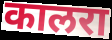
कालरा